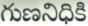
గుణనిధికి